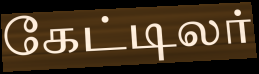
கேட்டிலர்